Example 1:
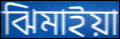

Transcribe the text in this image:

ঝিমাইয়া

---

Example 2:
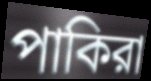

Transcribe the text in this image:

পাকিরা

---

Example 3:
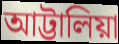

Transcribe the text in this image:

আট্টালিয়া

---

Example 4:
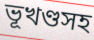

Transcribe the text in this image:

ভূখণ্ডসহ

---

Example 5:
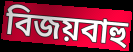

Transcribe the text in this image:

বিজয়বাহু